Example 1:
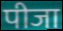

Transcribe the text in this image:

पीजा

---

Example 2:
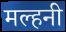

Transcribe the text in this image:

मल्हनी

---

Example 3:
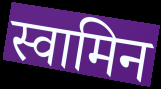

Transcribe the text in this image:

स्वामिन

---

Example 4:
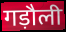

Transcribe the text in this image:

गड़ौली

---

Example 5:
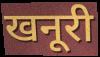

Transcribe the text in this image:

खनूरी